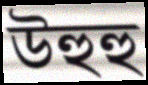
উহুহু